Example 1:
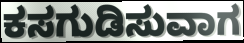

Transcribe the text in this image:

ಕಸಗುಡಿಸುವಾಗ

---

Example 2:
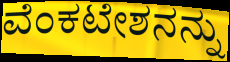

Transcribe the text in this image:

ವೆಂಕಟೇಶನನ್ನು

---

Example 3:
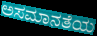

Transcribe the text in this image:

ಅಸಮಾನತೆಯ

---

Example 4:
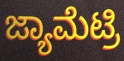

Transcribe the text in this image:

ಜ್ಯಾಮೆಟ್ರಿ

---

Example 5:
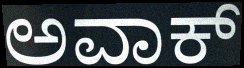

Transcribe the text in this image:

ಅವಾಕ್